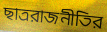
ছাত্ররাজনীতির